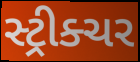
સ્ટ્રીક્ચર